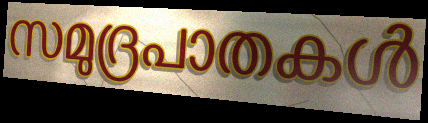
സമുദ്രപാതകൾ